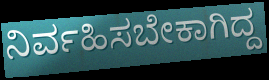
ನಿರ್ವಹಿಸಬೇಕಾಗಿದ್ದ